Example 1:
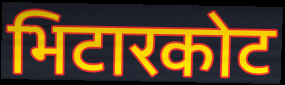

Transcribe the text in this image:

भिटारकोट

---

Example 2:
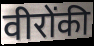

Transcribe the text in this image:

वीरोंकी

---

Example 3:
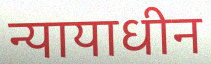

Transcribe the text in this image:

न्यायाधीन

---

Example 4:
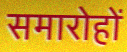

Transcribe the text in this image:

समारोहों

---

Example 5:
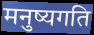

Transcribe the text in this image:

मनुष्यगति